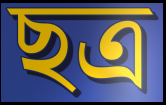
ছত্ৰ